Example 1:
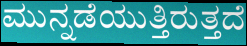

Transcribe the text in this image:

ಮುನ್ನಡೆಯುತ್ತಿರುತ್ತದೆ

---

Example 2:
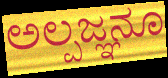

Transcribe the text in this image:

ಅಲ್ಪಜ್ಞನೂ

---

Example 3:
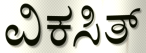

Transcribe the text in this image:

ವಿಕಸಿತ್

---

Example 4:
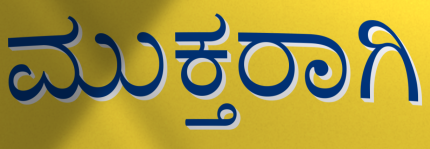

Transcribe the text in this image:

ಮುಕ್ತರಾಗಿ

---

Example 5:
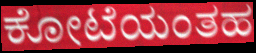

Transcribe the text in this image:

ಕೋಟೆಯಂತಹ